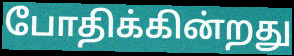
போதிக்கின்றது